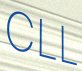
CLL